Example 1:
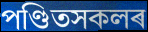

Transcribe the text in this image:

পণ্ডিতসকলৰ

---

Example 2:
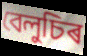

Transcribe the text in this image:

বেলুচিৰ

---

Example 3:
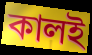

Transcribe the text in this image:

কালই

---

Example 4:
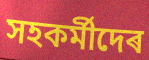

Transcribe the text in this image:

সহকৰ্মীদেৰ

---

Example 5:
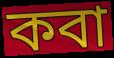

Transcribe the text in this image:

কবা